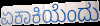
ಏಕಾಕಿಯೆಂದು